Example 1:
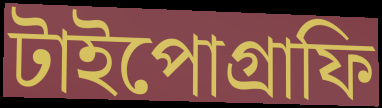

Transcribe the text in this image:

টাইপোগ্রাফি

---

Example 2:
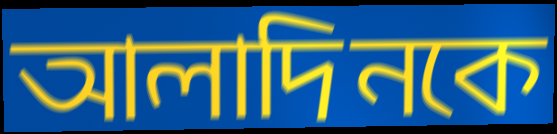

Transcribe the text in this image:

আলাদিনকে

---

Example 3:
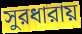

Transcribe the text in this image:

সুরধারায়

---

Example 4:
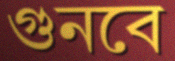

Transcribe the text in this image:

গুনবে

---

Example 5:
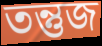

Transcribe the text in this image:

তন্তুজ